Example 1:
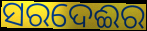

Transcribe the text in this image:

ସରଦେଈର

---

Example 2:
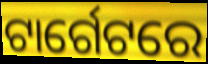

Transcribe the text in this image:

ଟାର୍ଗେଟରେ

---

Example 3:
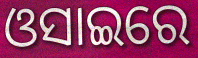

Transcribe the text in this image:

ଓସାଇରେ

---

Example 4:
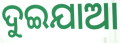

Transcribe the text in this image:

ଦୁଇଯାଆ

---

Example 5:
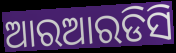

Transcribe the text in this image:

ଆରଆରଡିସି